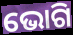
ଭୋଗି